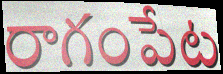
రాగంపేట